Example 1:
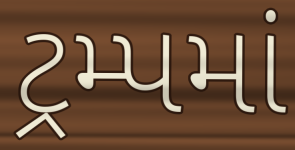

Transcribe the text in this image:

ટ્રમ્પમાં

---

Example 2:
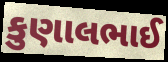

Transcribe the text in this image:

કુણાલભાઈ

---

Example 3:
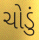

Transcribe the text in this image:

ચોડું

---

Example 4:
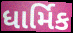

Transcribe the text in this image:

ધાર્મિક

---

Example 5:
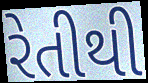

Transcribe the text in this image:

રેતીથી